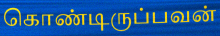
கொண்டிருப்பவன்